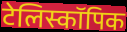
टेलिस्कॉपिक